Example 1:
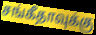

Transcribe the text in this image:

சங்கீதாவுக்கு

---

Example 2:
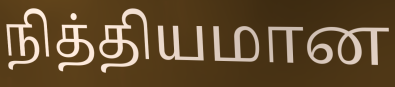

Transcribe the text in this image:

நித்தியமான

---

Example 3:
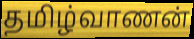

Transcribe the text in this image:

தமிழ்வாணன்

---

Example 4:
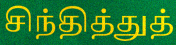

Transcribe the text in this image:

சிந்தித்துத்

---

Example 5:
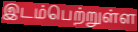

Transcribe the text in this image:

இடம்பெற்றுள்ள